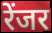
रेंजर